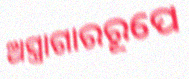
ଅସ୍ତ୍ରାଗାରରୂପେ